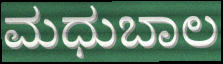
ಮಧುಬಾಲ